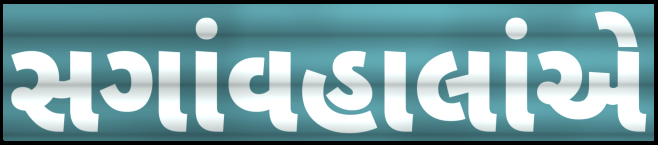
સગાંવહાલાંએ